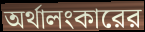
অর্থালংকারের